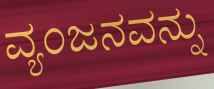
ವ್ಯಂಜನವನ್ನು